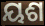
ୟଶ